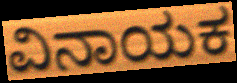
ವಿನಾಯಕ